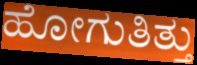
ಹೋಗುತಿತ್ತು